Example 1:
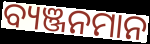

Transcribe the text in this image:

ବ୍ୟଞ୍ଜନମାନ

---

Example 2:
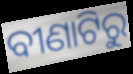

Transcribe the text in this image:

ବୀଣାଟିରୁ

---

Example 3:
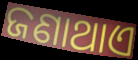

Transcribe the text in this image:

ଜଣାଥାଏ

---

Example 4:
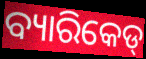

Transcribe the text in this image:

ବ୍ୟାରିକେଡ୍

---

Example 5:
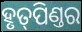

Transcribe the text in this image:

ହୃତ୍‌ପିଣ୍ତର